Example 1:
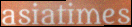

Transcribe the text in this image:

asiatimes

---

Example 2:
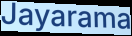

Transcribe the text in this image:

Jayarama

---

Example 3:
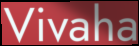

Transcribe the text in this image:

Vivaha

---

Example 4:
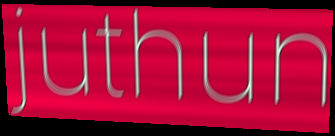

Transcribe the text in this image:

juthun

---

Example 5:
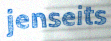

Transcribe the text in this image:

jenseits